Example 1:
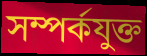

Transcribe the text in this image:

সম্পৰ্কযুক্ত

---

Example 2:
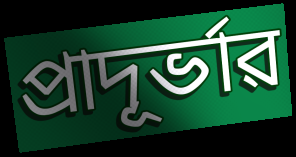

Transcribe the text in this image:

প্ৰাদূৰ্ভাৱ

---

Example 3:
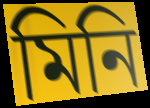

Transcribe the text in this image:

মিনি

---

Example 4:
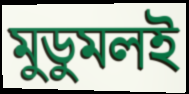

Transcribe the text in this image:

মুডুমলই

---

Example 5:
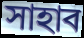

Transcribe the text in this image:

সাহাব